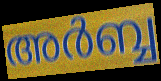
അർബ്ബ